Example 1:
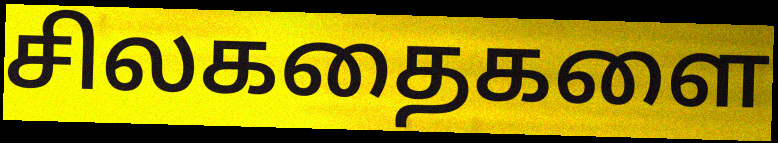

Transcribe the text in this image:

சிலகதைகளை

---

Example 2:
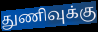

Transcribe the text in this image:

துணிவுக்கு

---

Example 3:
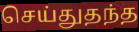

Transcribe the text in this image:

செய்துதந்த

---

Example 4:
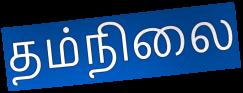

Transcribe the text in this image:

தம்நிலை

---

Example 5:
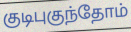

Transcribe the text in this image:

குடிபுகுந்தோம்